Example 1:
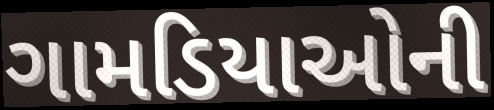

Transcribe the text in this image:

ગામડિયાઓની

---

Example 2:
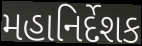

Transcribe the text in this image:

મહાનિર્દેશક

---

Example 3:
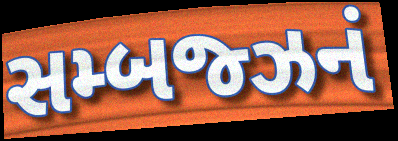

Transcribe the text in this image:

સમ્બજ્ઝનં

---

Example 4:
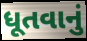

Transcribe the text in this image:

ધૂતવાનું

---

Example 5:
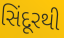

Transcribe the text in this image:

સિંદૂરથી